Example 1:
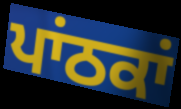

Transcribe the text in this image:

ਪਾਂਠਕਾਂ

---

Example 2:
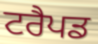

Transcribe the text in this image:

ਟਰੈਪਡ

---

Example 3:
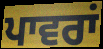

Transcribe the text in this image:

ਪਾਵਰਾਂ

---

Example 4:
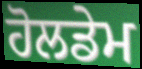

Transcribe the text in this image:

ਹੋਲਡੇਮ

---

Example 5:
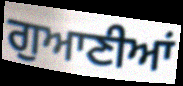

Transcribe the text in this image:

ਗੁਆਣੀਆਂ